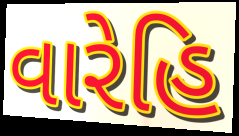
વારેહિ